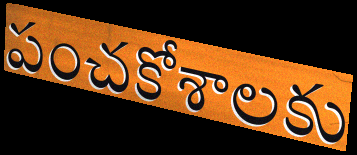
పంచకోశాలకు